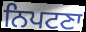
ਨਿਪਟਣਾ